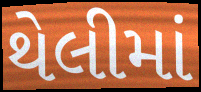
થેલીમાં